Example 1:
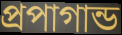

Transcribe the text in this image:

প্রপাগান্ড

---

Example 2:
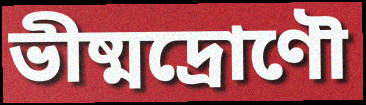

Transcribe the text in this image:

ভীষ্মদ্রোণৌ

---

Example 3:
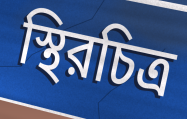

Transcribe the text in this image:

স্থিরচিত্র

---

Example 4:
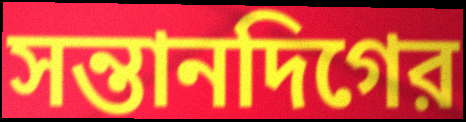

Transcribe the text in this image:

সন্তানদিগের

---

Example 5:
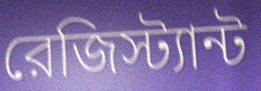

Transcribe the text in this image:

রেজিস্ট্যান্ট